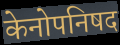
केनोपनिषद